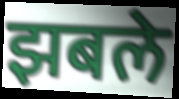
झबले